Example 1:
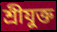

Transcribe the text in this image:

শ্রীযুক্ত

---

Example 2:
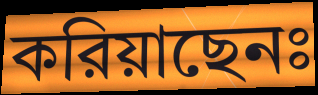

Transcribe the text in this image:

করিয়াছেনঃ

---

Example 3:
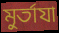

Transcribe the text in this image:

মুর্তাযা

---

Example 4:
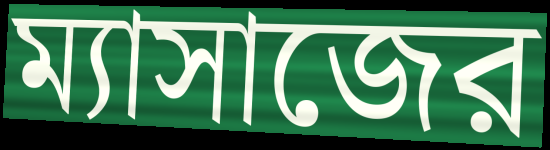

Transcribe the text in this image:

ম্যাসাজের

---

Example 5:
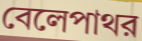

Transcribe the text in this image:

বেলেপাথর